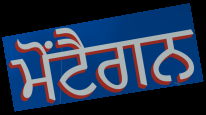
ਮੋਂਟੈਗਨ